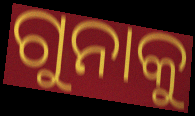
ଗୁନାକୁ